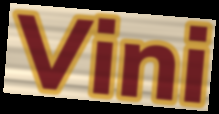
Vini